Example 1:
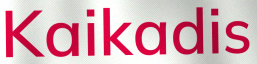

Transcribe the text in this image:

Kaikadis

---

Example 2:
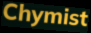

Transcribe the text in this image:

Chymist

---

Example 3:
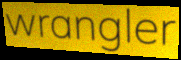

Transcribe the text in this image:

wrangler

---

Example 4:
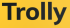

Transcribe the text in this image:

Trolly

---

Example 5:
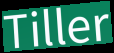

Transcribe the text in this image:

Tiller